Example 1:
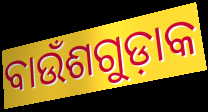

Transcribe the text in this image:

ବାଉଁଶଗୁଡ଼ାକ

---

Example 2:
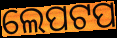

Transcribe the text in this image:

ଲେପଟପ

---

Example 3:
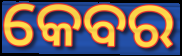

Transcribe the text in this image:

କେବର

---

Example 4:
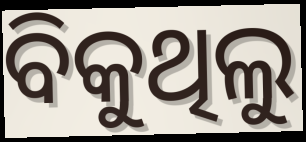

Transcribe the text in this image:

ବିକୁଥିଲୁ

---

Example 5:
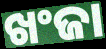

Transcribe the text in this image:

ଖଂଜା